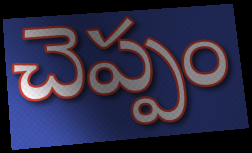
చెప్పం